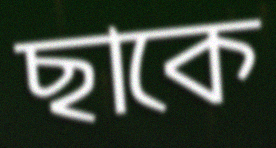
ছাকে